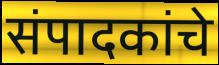
संपादकांचे